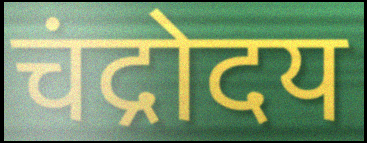
चंद्रोदय